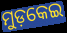
ମୁଡ଼କେଇ